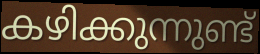
കഴിക്കുന്നുണ്ട്